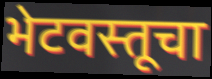
भेटवस्तूचा